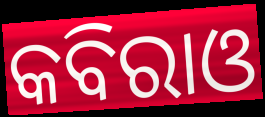
କବିରାଓ